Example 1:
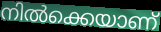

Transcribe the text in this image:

നിൽക്കെയാണ്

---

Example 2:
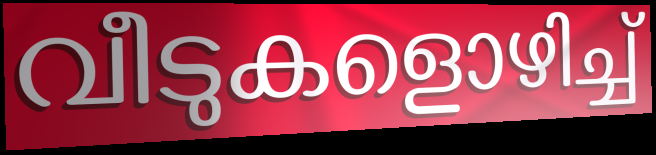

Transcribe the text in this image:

വീടുകളൊഴിച്ച്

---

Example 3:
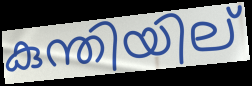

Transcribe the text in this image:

കുന്തിയില്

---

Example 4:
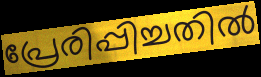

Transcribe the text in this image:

പ്രേരിപ്പിച്ചതിൽ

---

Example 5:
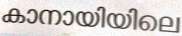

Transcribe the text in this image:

കാനായിയിലെ